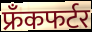
फ्रँकफर्टर